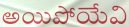
అయిపోయేవి